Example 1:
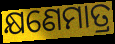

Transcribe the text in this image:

କ୍ଷଣେମାତ୍ର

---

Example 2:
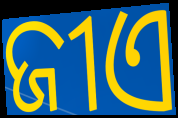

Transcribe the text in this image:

ଜୀଏ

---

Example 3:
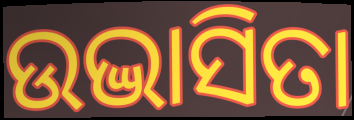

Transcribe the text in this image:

ଉଦ୍ଭାସିତା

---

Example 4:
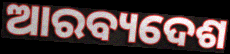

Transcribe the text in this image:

ଆରବ୍ୟଦେଶ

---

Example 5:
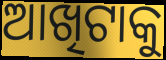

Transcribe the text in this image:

ଆଖିଟାକୁ